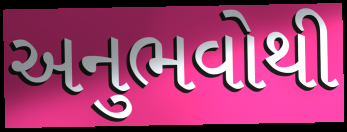
અનુભવોથી